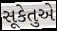
સૂકેતુએ